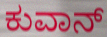
ಕುವಾನ್